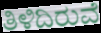
ತಿಳಿದಿರುವೆ